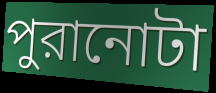
পুরানোটা